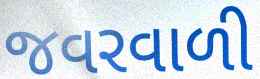
જવરવાળી